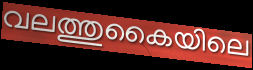
വലത്തുകൈയിലെ